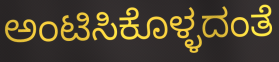
ಅಂಟಿಸಿಕೊಳ್ಳದಂತೆ